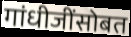
गांधीजींसोबत